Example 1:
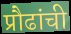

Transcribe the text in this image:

प्रौढांची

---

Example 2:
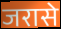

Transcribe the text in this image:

जरासे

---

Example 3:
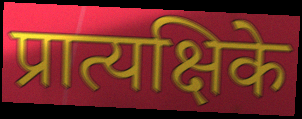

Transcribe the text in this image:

प्रात्यक्षिके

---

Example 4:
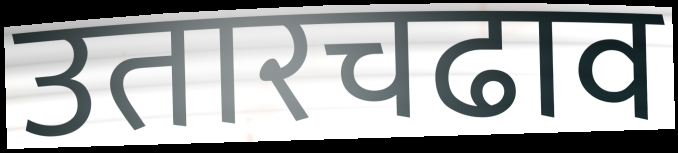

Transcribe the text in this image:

उतारचढाव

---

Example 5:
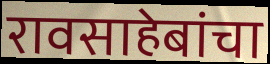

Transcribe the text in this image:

रावसाहेबांचा